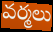
వర్మలు